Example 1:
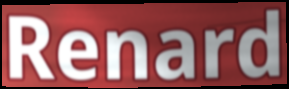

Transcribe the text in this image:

Renard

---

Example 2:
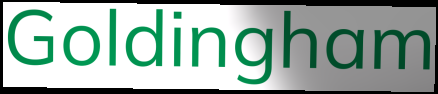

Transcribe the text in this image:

Goldingham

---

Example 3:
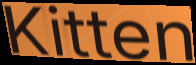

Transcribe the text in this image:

Kitten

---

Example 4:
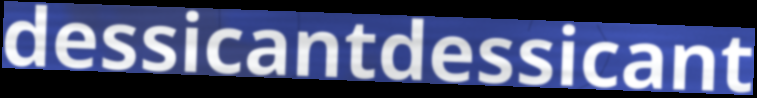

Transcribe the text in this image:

dessicantdessicant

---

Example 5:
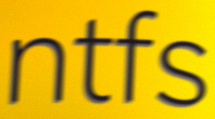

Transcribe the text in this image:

ntfs